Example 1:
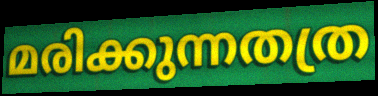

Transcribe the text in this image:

മരിക്കുന്നതത്ര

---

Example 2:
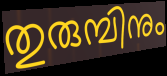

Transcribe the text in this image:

തുരുമ്പിനും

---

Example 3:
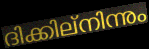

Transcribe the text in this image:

ദിക്കില്നിന്നും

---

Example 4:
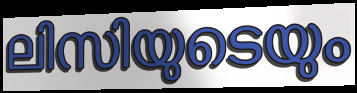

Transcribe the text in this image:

ലിസിയുടെയും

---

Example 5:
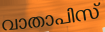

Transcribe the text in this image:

വാതാപിസ്